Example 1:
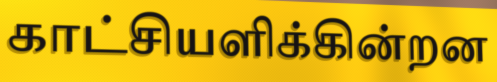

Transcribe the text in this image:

காட்சியளிக்கின்றன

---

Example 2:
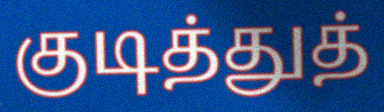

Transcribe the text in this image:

குடித்துத்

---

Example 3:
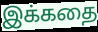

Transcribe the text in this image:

இக்கதை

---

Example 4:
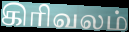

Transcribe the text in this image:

கிரிவலம்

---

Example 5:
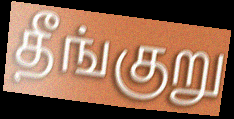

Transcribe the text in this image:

தீங்குறு